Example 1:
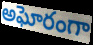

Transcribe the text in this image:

అఘోరంగా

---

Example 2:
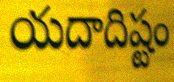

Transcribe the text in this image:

యదాదిష్టం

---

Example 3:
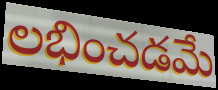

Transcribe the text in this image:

లభించడమే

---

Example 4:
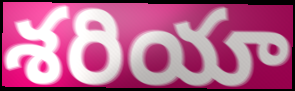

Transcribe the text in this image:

శరియా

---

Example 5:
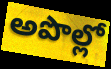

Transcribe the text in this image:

అపొల్లో